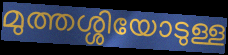
മുത്തശ്ശിയോടുള്ള